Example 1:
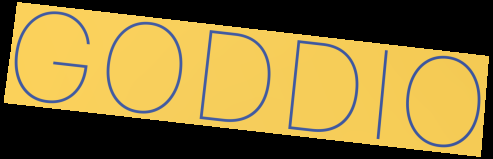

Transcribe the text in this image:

GODDIO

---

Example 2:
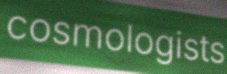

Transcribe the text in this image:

cosmologists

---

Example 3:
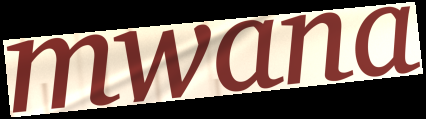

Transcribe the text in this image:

mwana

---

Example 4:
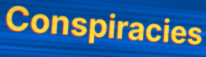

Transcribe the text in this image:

Conspiracies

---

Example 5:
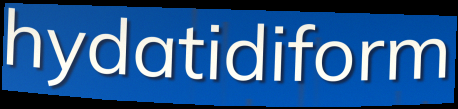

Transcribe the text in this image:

hydatidiform